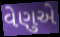
વેણુએ